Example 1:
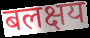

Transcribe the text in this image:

बलक्षय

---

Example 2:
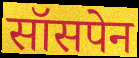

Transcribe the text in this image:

सॉसपेन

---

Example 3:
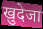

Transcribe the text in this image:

खुदेजा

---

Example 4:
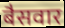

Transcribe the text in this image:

बैसवार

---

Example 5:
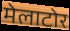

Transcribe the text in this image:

मेलाटोर